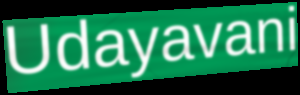
Udayavani